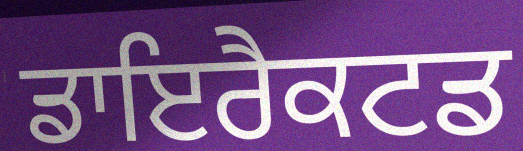
ਡਾਇਰੈਕਟਡ